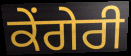
ਕੇਂਗੇਰੀ